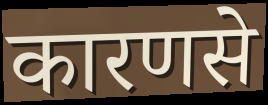
कारणसे